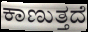
ಕಾಣುತ್ತದೆ